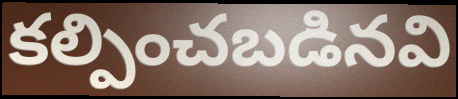
కల్పించబడినవి